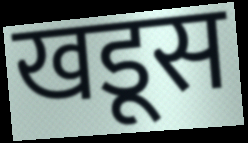
खडूस